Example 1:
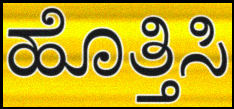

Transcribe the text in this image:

ಹೊತ್ತಿಸಿ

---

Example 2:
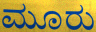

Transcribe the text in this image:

ಮೂರು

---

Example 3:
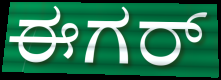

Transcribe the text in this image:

ಈಗರ್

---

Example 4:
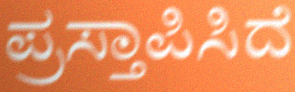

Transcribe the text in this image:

ಪ್ರಸ್ತಾಪಿಸಿದೆ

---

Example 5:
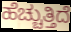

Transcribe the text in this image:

ಹೆಚ್ಚುತ್ತಿದೆ